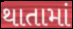
થાતામાં